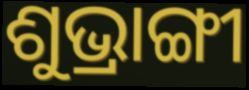
ଶୁଭ୍ରାଙ୍ଗୀ